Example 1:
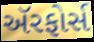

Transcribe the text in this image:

ઍરફોર્સ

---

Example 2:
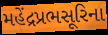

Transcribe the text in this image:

મહેંદ્રપ્રભસૂરિના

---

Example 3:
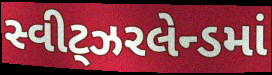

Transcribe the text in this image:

સ્વીટ્ઝરલેન્ડમાં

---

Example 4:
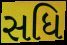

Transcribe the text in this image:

સધિ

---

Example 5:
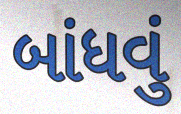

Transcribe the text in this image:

બાંધવું